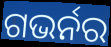
ଗଭର୍ନର